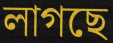
লাগছে